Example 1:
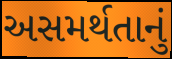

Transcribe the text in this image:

અસમર્થતાનું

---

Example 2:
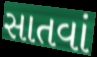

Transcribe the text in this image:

સાતવાં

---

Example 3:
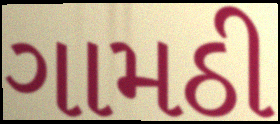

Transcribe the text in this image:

ગામઠી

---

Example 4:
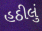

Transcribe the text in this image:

હઠીલું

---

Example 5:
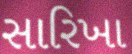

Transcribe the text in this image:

સારિખા